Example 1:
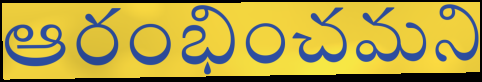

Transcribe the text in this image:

ఆరంభించమని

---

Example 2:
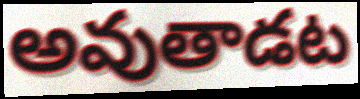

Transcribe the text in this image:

అవుతాడట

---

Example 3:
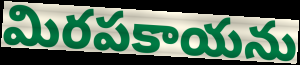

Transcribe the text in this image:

మిరపకాయను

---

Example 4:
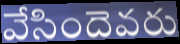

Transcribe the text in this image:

వేసిందెవరు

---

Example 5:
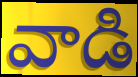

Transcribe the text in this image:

వాడి